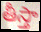
తీస్తా